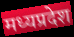
मध्यप्रदेश